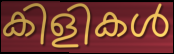
കിളികൾ